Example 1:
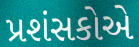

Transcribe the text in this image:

પ્રશંસકોએ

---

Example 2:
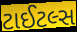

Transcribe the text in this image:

ટાઈટલ્સ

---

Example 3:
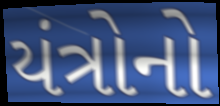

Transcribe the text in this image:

યંત્રોનો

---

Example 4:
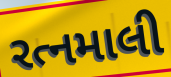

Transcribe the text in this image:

રત્નમાલી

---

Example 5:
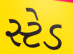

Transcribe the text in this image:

સ્ટેડ